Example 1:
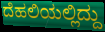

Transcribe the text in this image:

ದೆಹಲಿಯಲ್ಲಿದ್ದು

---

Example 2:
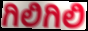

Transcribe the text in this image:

ಗಿಲಿಗಿಲಿ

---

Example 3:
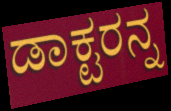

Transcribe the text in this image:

ಡಾಕ್ಟರನ್ನ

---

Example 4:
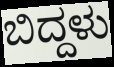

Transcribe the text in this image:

ಬಿದ್ದಳು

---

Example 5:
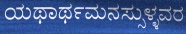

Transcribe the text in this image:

ಯಥಾರ್ಥಮನಸ್ಸುಳ್ಳವರ